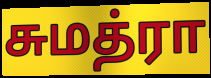
சுமத்ரா